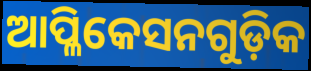
ଆପ୍ଳିକେସନଗୁଡ଼ିକ